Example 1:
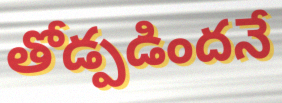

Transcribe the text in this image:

తోడ్పడిందనే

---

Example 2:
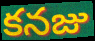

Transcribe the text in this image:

కనజు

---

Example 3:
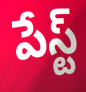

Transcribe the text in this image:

పేస్ట్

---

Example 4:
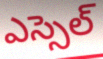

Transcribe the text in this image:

ఎస్సెల్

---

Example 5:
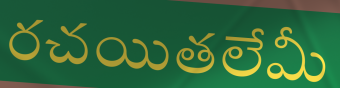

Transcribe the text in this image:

రచయితలేమీ